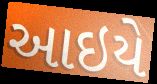
આઇયે